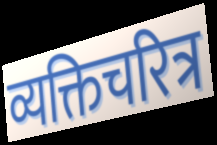
व्यक्तिचरित्र